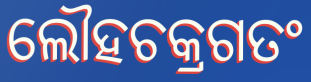
ଲୌହଚକ୍ରଗତଂ